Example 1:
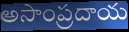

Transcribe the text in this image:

అసాంప్రదాయ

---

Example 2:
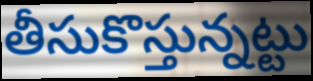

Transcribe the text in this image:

తీసుకొస్తున్నట్టు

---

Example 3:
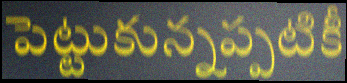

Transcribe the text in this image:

పెట్టుకున్నప్పటికీ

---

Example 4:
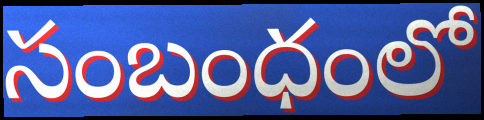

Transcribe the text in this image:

సంబంధంలో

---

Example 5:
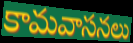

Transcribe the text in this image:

కామవాసనలు